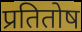
प्रतितोष